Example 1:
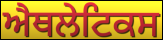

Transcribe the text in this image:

ਐਥਲੇਟਿਕਸ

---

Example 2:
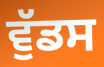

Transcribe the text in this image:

ਵੁੱਡਸ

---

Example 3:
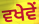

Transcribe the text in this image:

ਵਖੇਵੇਂ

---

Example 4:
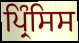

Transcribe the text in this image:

ਪ੍ਰਿੰਸਿਸ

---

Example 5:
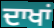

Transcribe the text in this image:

ਦਾਖਾਂ